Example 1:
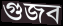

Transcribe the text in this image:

গুজব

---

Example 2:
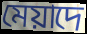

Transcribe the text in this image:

মেয়াদে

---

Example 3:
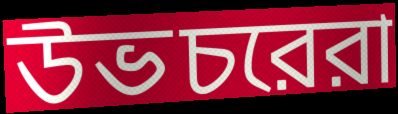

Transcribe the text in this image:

উভচরেরা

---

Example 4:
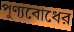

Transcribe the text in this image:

পুণ্যবোধের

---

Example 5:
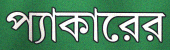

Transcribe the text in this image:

প্যাকারের